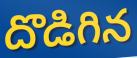
దొడిగిన